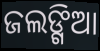
ଜଲଙ୍ଗିଆ